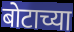
बोटाच्या